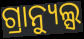
ଗ୍ରାନ୍ୟୁଲ୍ସ